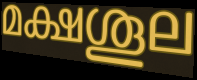
മക്ഷശൂല